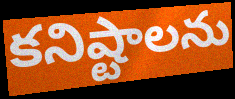
కనిష్టాలను